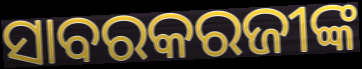
ସାବରକରଜୀଙ୍କ